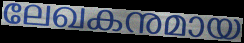
ലേഖകനുമായ